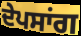
ਦੇਪਸਾਂਗ